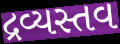
દ્રવ્યસ્તવ